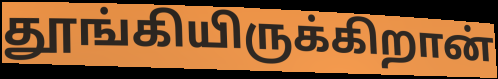
தூங்கியிருக்கிறான்